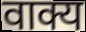
वाक्य